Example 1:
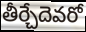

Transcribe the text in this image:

తీర్చేదెవరో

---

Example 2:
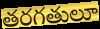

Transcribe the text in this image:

తరగతులూ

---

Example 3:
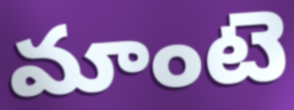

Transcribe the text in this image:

మాంటె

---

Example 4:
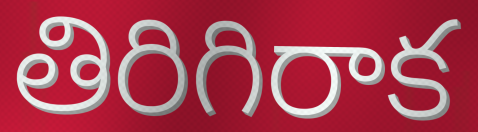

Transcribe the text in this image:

తిరిగిరాక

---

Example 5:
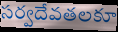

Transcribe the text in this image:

సర్వదేవతలకూ